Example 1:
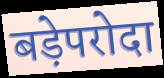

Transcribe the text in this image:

बड़ेपरोदा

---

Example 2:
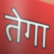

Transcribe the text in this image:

तेगा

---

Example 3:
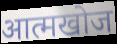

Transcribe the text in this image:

आत्मखोज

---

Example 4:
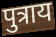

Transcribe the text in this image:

पुत्राय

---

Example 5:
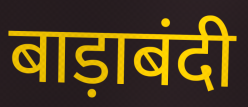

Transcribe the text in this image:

बाड़ाबंदी